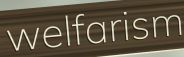
welfarism